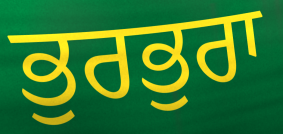
ਭੁਰਭੁਰਾ